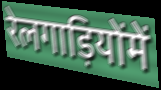
रेलगाड़ियोंमें